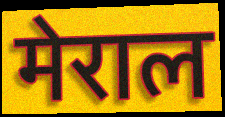
मेराल